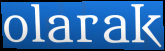
olarak